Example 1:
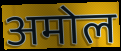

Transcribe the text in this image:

अमोल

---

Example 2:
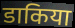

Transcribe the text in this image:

डाकिया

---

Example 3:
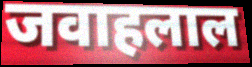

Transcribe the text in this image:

जवाहलाल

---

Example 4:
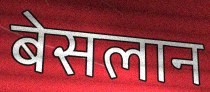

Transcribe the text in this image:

बेसलान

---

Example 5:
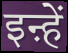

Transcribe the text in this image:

इऩ्हें